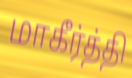
மாகீர்த்தி